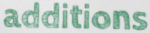
additions